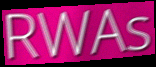
RWAs